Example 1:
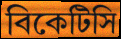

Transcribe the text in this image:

বিকেটিসি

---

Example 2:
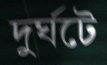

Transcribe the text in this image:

দুর্ঘটে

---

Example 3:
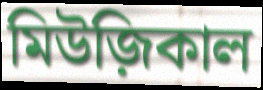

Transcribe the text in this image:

মিউজ়িকাল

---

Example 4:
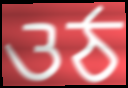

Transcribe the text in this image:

ওঠ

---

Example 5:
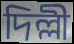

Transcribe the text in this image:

দিল্লী